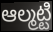
ఆల్మట్టి